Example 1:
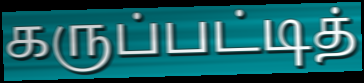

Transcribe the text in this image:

கருப்பட்டித்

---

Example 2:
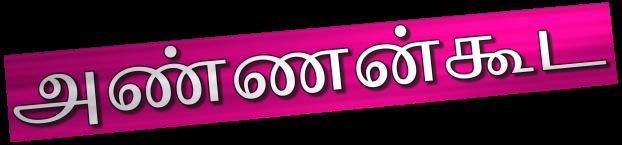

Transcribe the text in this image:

அண்ணன்கூட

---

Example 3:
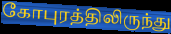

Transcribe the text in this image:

கோபுரத்திலிருந்து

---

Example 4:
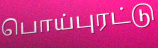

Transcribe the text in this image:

பொய்புரட்டு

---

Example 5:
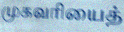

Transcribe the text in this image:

முகவரியைத்